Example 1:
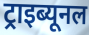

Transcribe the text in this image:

ट्राइब्यूनल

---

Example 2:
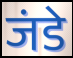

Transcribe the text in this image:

जंडे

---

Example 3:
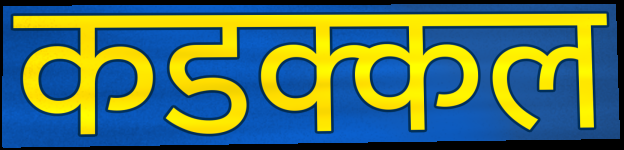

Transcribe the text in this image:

कडक्कल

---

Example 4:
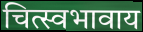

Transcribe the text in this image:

चित्स्वभावाय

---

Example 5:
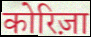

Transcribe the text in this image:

कोरिज़ा